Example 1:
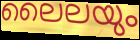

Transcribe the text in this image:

ലൈലയും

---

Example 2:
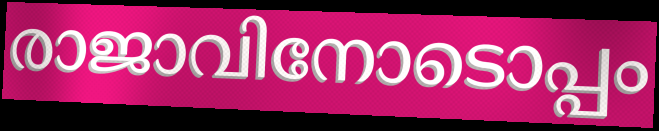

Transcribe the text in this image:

രാജാവിനോടൊപ്പം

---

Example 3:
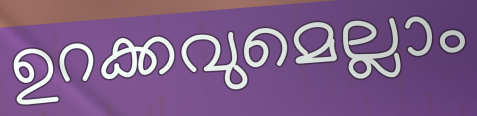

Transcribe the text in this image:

ഉറക്കവുമെല്ലാം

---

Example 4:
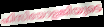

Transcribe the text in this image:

ഫിസിയോളജിയുടെ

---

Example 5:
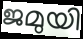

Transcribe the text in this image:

ജമുയി